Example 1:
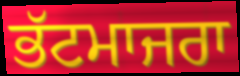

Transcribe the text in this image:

ਭੱਟਮਾਜਰਾ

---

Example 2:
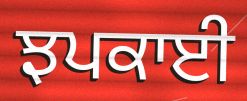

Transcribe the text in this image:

ਝਪਕਾਈ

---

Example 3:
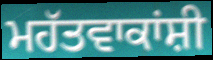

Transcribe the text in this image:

ਮਹੱਤਵਾਕਾਂਸ਼ੀ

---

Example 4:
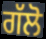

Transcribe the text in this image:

ਗੱਲੋ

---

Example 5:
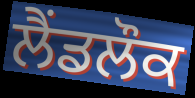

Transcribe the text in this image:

ਲੈਂਡਲੌਕ